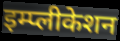
इम्प्लीकेशन